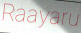
Raayaru